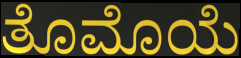
ತೊಮೊಯೆ